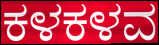
ಕಳಕಳವ